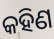
କହିଣ